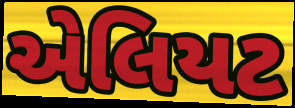
એલિયટ